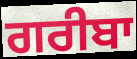
ਗਰੀਬਾ